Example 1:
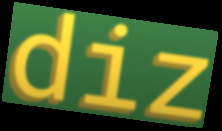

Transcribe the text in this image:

diz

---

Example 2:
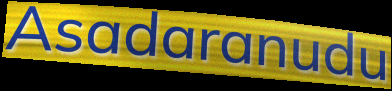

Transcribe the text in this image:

Asadaranudu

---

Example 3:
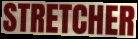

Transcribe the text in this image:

STRETCHER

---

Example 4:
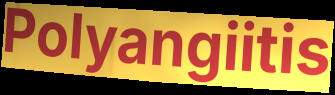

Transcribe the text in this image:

Polyangiitis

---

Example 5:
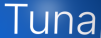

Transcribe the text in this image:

Tuna